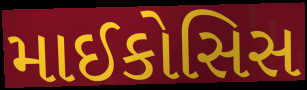
માઈકોસિસ